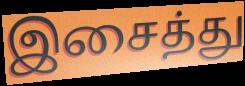
இசைத்து